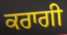
ਕਰਾਗੀ